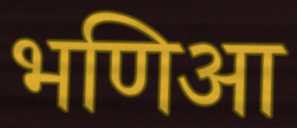
भणिआ